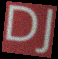
DJ